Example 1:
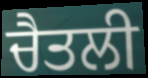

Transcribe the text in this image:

ਚੈਤਲੀ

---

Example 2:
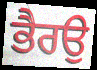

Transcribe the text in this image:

ਭੈਰਉ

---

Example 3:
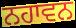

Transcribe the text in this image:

ਨਹਾਵਨ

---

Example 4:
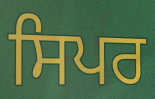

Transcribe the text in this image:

ਸਿਪਰ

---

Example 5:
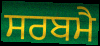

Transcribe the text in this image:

ਸਰਬਮੈ